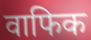
वाफिक